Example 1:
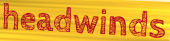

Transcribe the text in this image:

headwinds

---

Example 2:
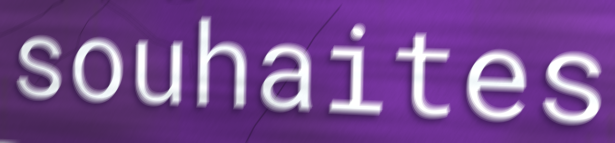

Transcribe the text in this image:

souhaites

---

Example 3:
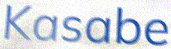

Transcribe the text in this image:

Kasabe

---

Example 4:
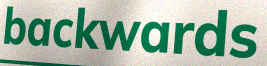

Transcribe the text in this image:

backwards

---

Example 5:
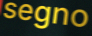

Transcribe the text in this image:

segno